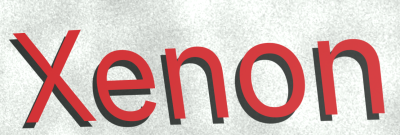
Xenon